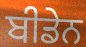
ਬੀਡੇਨ